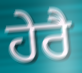
ਹੇਰੈ